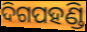
ଦିଗପହଣ୍ଡି